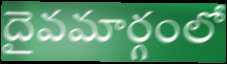
దైవమార్గంలో